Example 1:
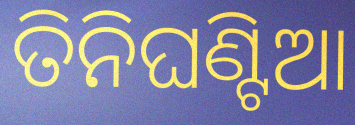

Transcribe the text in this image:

ତିନିଘଣ୍ଟିଆ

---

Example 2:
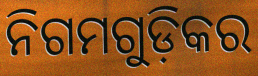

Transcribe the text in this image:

ନିଗମଗୁଡ଼ିକର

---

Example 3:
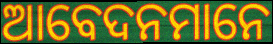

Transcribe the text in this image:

ଆବେଦନମାନେ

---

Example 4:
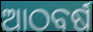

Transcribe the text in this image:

ଆଠବର୍ଷ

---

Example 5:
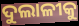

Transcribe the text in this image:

ଦୁଲାଳୀକୁ